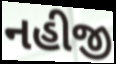
નહીજી